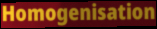
Homogenisation